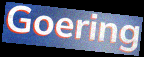
Goering